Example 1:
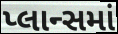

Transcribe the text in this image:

પ્લાન્સમાં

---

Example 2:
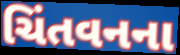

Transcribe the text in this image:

ચિંતવનના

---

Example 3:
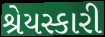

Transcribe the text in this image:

શ્રેયસ્કારી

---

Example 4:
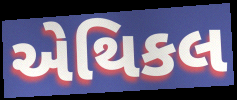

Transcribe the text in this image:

એથિકલ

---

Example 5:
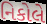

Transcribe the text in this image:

નિકોલે